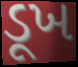
ડૂખ